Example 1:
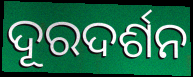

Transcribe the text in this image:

ଦୂରଦର୍ଶନ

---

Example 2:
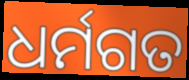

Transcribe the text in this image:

ଧର୍ମଗତ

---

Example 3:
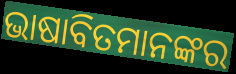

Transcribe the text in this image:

ଭାଷାବିତମାନଙ୍କର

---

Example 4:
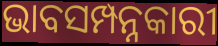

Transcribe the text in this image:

ଭାବସମ୍ପନ୍ନକାରୀ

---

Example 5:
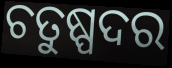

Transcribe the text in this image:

ଚତୁଷ୍ପଦର